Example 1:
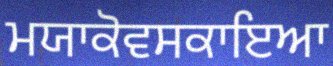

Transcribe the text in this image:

ਮਯਾਕੋਵਸਕਾਇਆ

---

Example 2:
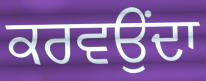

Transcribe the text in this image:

ਕਰਵਉਂਦਾ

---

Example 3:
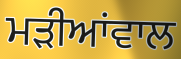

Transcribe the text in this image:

ਮੜੀਆਂਵਾਲ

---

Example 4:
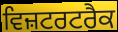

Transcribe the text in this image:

ਵਿਜ਼ਟਰਟਰੈਕ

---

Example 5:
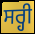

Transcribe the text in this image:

ਸਰ੍ਹੀ